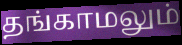
தங்காமலும்